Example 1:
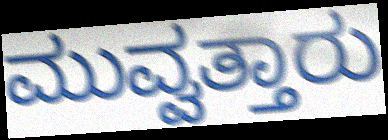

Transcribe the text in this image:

ಮುವ್ವತ್ತಾರು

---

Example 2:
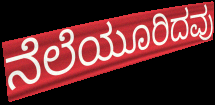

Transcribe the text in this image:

ನೆಲೆಯೂರಿದವು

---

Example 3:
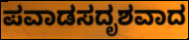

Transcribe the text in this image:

ಪವಾಡಸದೃಶವಾದ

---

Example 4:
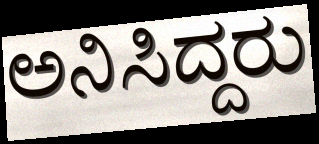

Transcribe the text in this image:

ಅನಿಸಿದ್ದರು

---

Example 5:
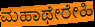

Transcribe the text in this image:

ಮಹಾಥೇರೇಹಿ